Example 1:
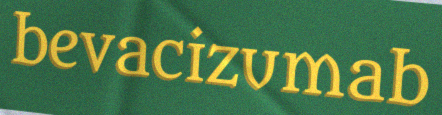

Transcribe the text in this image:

bevacizumab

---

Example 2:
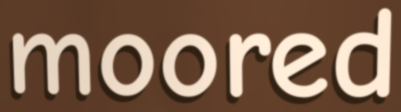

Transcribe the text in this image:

moored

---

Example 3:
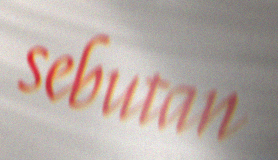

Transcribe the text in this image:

sebutan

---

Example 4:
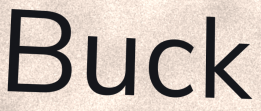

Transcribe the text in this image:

Buck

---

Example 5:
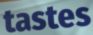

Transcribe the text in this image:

tastes